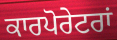
ਕਾਰਪੋਰੇਟਰਾਂ